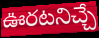
ఊరటనిచ్చే